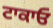
ਟਾਕਾਓ